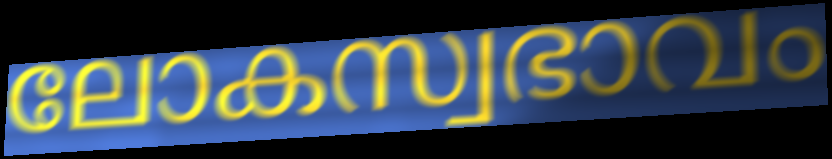
ലോകസ്വഭാവം